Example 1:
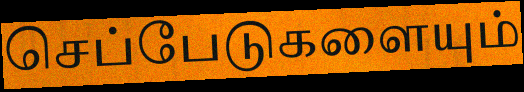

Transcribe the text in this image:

செப்பேடுகளையும்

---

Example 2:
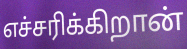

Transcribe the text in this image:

எச்சரிக்கிறான்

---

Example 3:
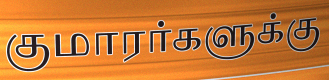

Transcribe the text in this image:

குமாரர்களுக்கு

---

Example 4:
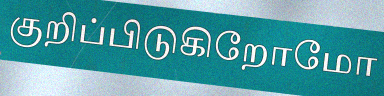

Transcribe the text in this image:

குறிப்பிடுகிறோமோ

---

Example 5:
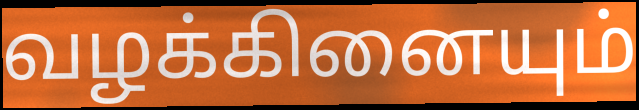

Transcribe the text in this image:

வழக்கினையும்